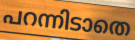
പറന്നിടാതെ